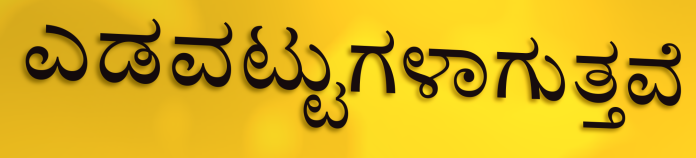
ಎಡವಟ್ಟುಗಳಾಗುತ್ತವೆ